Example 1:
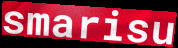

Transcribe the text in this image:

smarisu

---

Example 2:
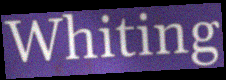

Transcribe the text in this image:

Whiting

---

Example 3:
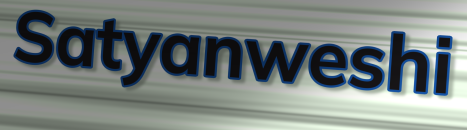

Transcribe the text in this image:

Satyanweshi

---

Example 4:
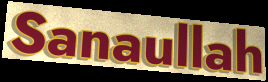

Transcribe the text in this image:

Sanaullah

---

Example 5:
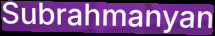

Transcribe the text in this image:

Subrahmanyan